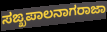
ಸಙ್ಖಪಾಲನಾಗರಾಜಾ